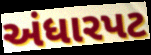
અંધારપટ